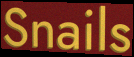
Snails